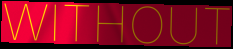
WITHOUT